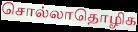
சொல்லாதொழிக